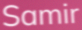
Samir